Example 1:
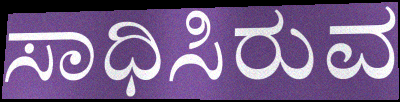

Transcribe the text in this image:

ಸಾಧಿಸಿರುವ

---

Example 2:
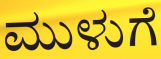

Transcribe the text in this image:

ಮುಳುಗೆ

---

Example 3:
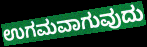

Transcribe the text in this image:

ಉಗಮವಾಗುವುದು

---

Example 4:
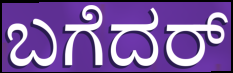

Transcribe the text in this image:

ಬಗೆದರ್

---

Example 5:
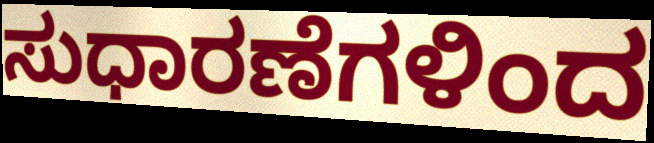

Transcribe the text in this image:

ಸುಧಾರಣೆಗಳಿಂದ